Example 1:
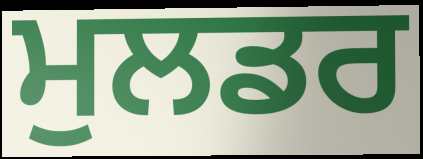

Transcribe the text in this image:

ਮੁਲਡਰ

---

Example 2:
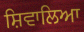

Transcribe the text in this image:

ਸ਼ਿਵਾਲਿਆ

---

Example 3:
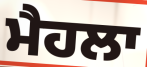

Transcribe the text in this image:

ਮੈਹਲਾ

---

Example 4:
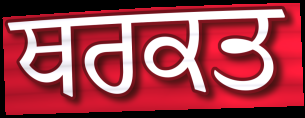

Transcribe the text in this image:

ਥਰਕਤ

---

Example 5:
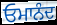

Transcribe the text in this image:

ਓਮਾਨੰਦ